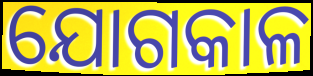
ଯୋଗକାଳ